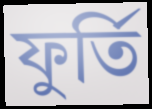
ফুৰ্তি